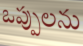
ఒప్పులను